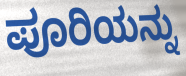
ಪೂರಿಯನ್ನು